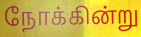
நோக்கின்று